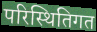
परिस्थितिगत